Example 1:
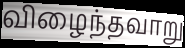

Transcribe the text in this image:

விழைந்தவாறு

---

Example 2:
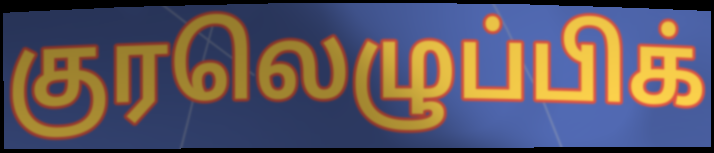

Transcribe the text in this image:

குரலெழுப்பிக்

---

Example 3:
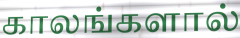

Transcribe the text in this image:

காலங்களால்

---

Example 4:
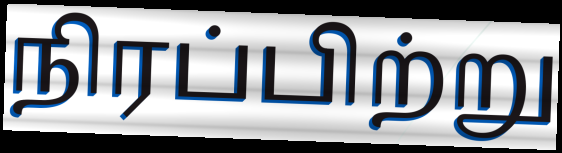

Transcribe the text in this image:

நிரப்பிற்று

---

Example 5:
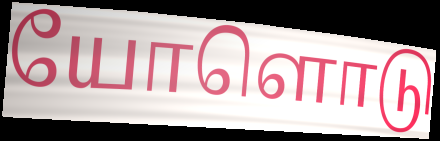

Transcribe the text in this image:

யோளொடு